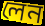
লেন